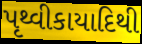
પૃથ્વીકાયાદિથી